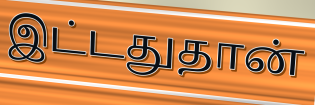
இட்டதுதான்